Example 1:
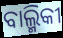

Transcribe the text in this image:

ବାଲ୍ମିକୀ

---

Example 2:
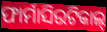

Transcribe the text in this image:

ଫାର୍ମାସିଉଟିକାଲ୍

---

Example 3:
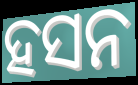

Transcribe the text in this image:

ହସନ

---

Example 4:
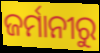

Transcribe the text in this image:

ଜର୍ମାନୀରୁ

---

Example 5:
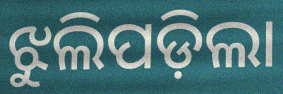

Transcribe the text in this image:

ଝୁଲିପଡ଼ିଲା